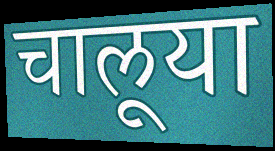
चालूया